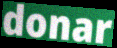
donar